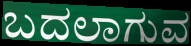
ಬದಲಾಗುವ